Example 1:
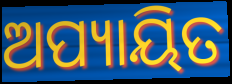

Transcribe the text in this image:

ଅପ୍ୟାୟିତ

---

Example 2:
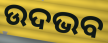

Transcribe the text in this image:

ଉଦଭବ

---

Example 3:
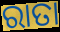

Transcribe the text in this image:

ରାତା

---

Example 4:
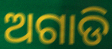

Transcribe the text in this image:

ଅଗାଡି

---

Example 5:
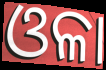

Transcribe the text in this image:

ଓଳା